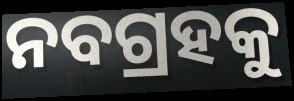
ନବଗ୍ରହକୁ